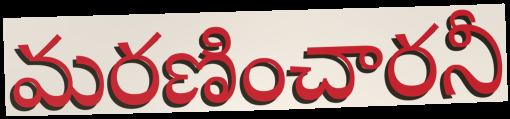
మరణించారనీ